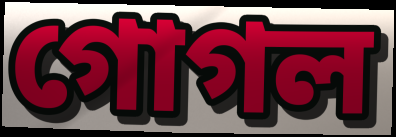
গোগল